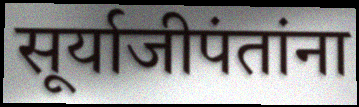
सूर्याजीपंतांना